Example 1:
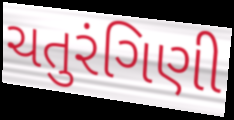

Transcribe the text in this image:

ચતુરંગિણી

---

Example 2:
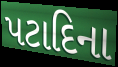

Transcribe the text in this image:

પટાદિના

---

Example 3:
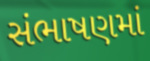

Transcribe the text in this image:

સંભાષણમાં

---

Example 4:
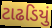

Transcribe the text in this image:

ટાઢડિયું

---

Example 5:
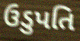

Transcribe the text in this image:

ઉડુપતિ